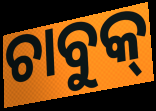
ଚାବୁକ୍